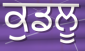
ਕੁਡਲੂ